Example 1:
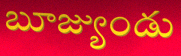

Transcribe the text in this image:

బూజ్యుండు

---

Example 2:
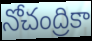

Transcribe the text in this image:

నోచంద్రికా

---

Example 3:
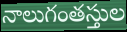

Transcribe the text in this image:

నాలుగంతస్తుల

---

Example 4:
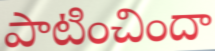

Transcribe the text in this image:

పాటించిందా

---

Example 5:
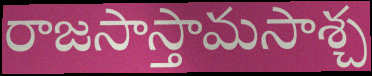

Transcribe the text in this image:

రాజసాస్తామసాశ్చ